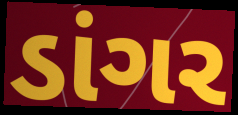
ડાંગર